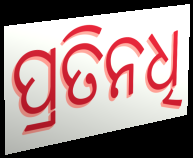
ପ୍ରତିନଧି